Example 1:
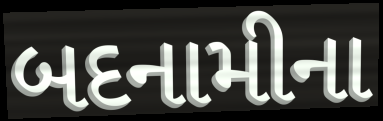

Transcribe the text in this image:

બદનામીના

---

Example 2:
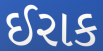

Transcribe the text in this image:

ઈરાક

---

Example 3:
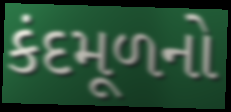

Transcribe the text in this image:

કંદમૂળનો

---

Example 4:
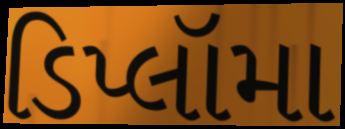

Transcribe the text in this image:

ડિપ્લૉમા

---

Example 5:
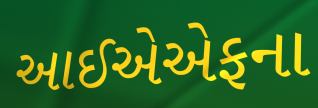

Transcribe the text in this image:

આઈએએફના